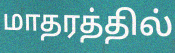
மாதரத்தில்